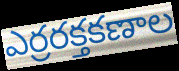
ఎర్రరక్తకణాల